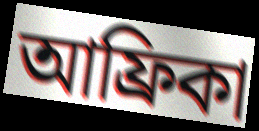
আফ্রিকা